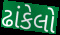
ઢાંકેલો